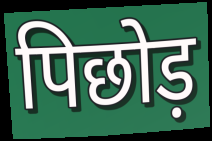
पिछोड़